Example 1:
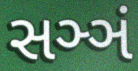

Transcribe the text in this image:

સઞ્ઞં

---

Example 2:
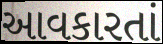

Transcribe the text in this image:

આવકારતાં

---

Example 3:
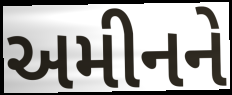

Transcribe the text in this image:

અમીનને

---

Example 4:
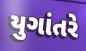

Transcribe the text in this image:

યુગાંતરે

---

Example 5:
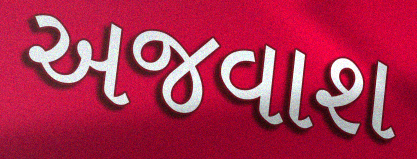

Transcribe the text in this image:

અજવાશ